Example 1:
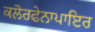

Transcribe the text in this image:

ਕਲੋਰਫੇਨਾਪਾਇਰ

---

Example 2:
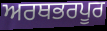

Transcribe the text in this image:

ਅਰਥਭਰਪੂਰ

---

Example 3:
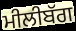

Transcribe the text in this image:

ਮੀਲੀਬੱਗ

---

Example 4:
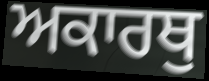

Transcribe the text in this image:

ਅਕਾਰਥੁ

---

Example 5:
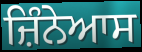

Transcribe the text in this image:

ਜ਼ਿੰਨੇਆਸ